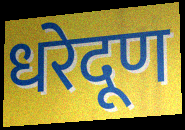
धरेदूण